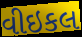
વીઇકલ